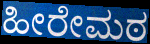
ಹೀರೇಮಠ